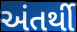
અંતર્થી